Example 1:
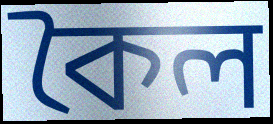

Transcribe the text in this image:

কৈল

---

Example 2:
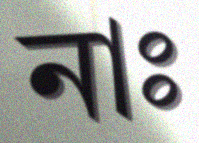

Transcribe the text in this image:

নাঃ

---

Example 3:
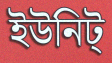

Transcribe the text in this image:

ইউনিট্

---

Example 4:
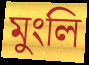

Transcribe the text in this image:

মুংলি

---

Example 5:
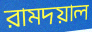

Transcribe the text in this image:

রামদয়াল